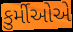
કુર્મીઓએ